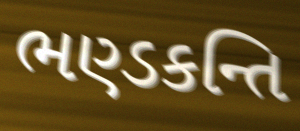
ભણ્ડકન્તિ